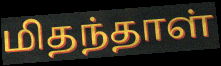
மிதந்தாள்